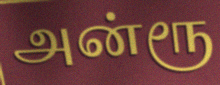
அன்ரூ